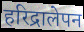
हरिद्रालेपन